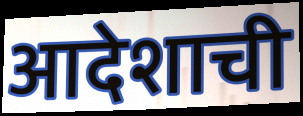
आदेशाची